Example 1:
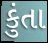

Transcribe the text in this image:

કુંતા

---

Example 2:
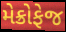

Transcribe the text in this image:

મેક્રોફેજ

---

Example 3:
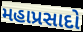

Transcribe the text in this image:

મહાપ્રસાદો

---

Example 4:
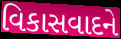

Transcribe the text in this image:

વિકાસવાદને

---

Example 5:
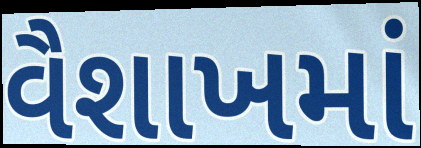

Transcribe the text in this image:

વૈશાખમાં